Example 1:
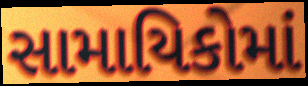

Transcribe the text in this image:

સામાયિકોમાં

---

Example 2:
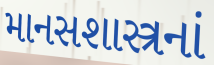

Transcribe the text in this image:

માનસશાસ્ત્રનાં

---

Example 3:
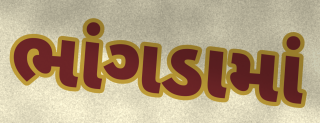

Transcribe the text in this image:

ભાંગડામાં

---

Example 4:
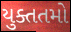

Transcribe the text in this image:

યુક્તતમો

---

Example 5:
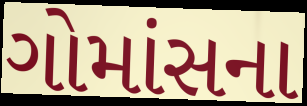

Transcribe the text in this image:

ગોમાંસના